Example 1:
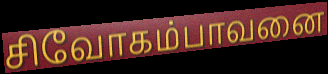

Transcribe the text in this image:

சிவோகம்பாவனை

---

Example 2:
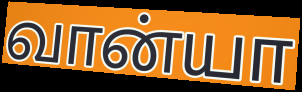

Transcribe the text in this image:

வான்யா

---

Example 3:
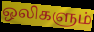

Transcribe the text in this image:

ஒலிகளும்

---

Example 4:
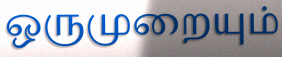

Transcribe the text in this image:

ஒருமுறையும்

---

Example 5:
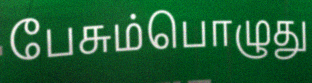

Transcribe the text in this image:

பேசும்பொழுது